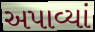
અપાવ્યાં